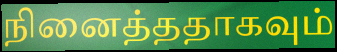
நினைத்ததாகவும்